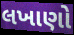
લખાણો